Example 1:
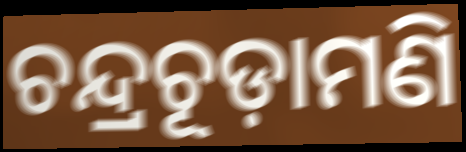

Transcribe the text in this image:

ଚନ୍ଦ୍ରଚୂଡ଼ାମଣି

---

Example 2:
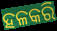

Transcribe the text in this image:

ହଳକରି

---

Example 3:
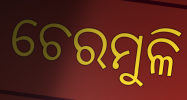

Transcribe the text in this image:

ଚେରମୁଳି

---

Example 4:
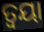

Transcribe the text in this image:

ତ୍ୱୟା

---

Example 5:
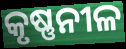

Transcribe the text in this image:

କୃଷ୍ଣନୀଳ